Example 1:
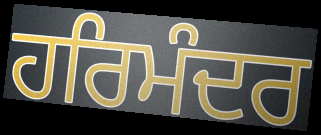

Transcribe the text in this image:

ਹਰਿਮੰਦਰ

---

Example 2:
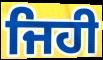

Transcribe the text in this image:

ਜਿਹੀ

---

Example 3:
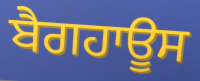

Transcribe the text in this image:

ਬੈਗਹਾਊਸ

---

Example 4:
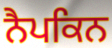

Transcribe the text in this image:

ਨੈਪਕਿਨ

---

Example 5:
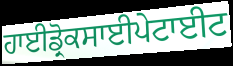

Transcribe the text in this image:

ਹਾਈਡ੍ਰੋਕਸਾਈਪੇਟਾਈਟ